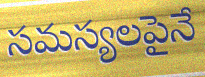
సమస్యలపైనే